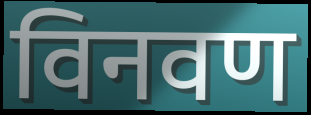
विनवण